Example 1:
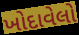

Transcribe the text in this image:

ખોદાવેલો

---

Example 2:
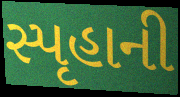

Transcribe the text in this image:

સ્પૃહાની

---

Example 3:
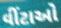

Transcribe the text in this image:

વીંટાઓ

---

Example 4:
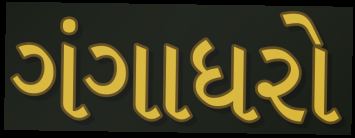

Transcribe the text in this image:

ગંગાધરો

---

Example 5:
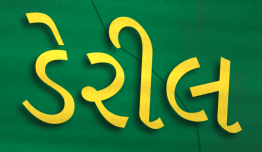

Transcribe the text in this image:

ડેરીલ